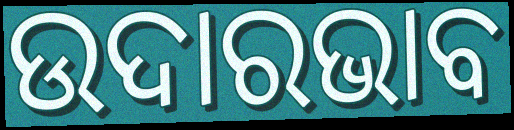
ଉଦାରଭାବ